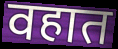
वहात